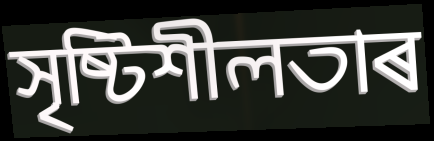
সৃষ্টিশীলতাৰ